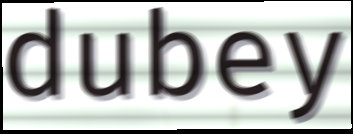
dubey